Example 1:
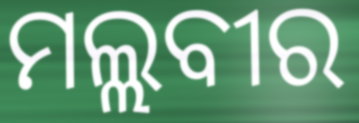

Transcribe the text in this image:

ମଲ୍ଲବୀର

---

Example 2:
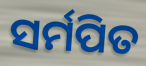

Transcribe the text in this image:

ସର୍ମପିତ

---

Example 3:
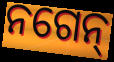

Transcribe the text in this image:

ନଗେନ୍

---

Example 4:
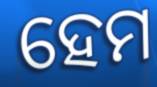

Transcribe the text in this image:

ହେମ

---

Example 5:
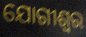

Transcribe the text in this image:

ଯୋଗୀଶ୍ୱର